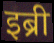
इब्री